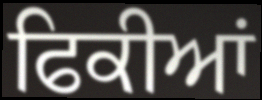
ਫਿਕੀਆਂ